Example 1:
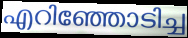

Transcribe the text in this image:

എറിഞ്ഞോടിച്ച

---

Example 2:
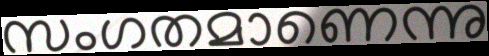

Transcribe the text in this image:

സംഗതമാണെന്നു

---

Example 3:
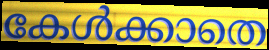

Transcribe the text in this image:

കേൾക്കാതെ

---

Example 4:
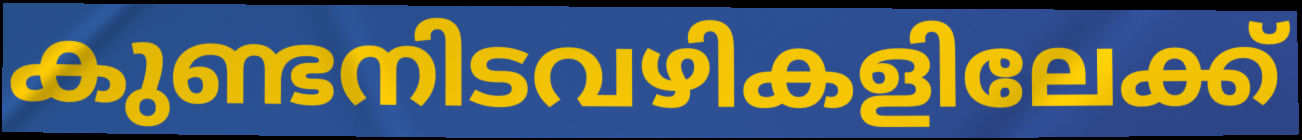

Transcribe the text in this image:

കുണ്ടനിടവഴികളിലേക്ക്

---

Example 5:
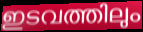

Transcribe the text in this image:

ഇടവത്തിലും